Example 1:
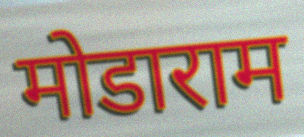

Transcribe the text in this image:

मोडाराम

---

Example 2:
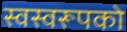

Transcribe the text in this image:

स्वस्वरूपको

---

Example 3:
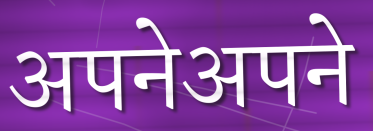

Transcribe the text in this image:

अपनेअपने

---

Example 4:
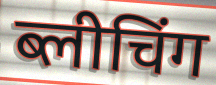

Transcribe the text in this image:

ब्लीचिंग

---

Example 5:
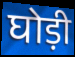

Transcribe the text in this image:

घोड़ी